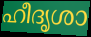
ഹീദൃശാ